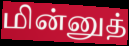
மின்னுத்